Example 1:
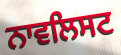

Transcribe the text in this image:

ਨਾਵਲਿਸਟ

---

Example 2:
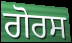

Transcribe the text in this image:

ਗੋਰਸ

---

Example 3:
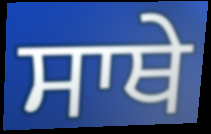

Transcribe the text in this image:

ਸਾਥੇ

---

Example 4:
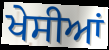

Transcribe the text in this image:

ਖੇਸੀਆਂ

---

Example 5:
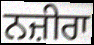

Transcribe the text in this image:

ਨਜ਼ੀਰਾ